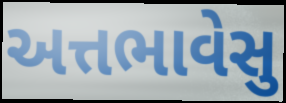
અત્તભાવેસુ